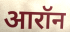
आरॉन